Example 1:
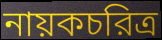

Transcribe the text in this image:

নায়কচরিত্র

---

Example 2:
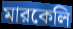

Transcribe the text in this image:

মারকেলি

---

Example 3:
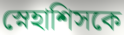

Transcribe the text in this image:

স্নেহাশিসকে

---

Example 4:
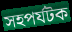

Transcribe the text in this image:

সহপর্যটক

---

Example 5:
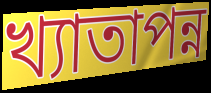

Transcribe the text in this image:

খ্যাতাপন্ন